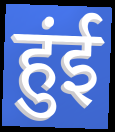
हुंई